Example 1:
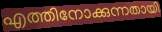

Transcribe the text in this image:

എത്തിനോക്കുന്നതായി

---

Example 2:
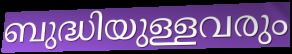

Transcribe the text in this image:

ബുദ്ധിയുള്ളവരും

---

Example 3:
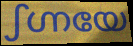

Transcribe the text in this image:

ഽഗ്നയേ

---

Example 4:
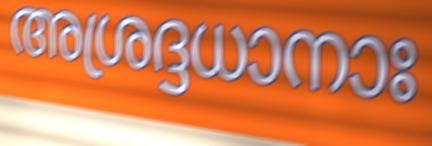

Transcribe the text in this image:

അശ്രദ്ദധാനാഃ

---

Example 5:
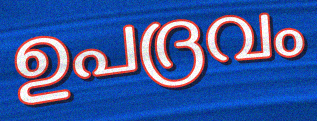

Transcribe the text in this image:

ഉപദ്രവം